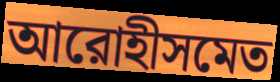
আরোহীসমেত